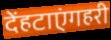
देंहटाएंगहरी